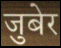
जुबेर